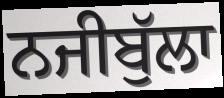
ਨਜੀਬੁੱਲਾ